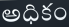
అధికం